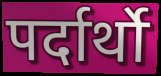
पर्दार्थो